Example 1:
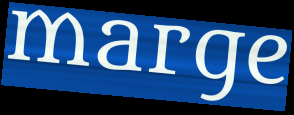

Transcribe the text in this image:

marge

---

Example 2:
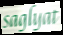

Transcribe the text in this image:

saglyat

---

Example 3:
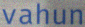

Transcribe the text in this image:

vahun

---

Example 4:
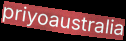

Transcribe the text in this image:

priyoaustralia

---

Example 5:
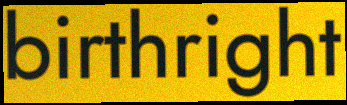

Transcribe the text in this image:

birthright